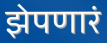
झेपणारं